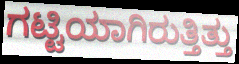
ಗಟ್ಟಿಯಾಗಿರುತ್ತಿತ್ತು